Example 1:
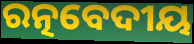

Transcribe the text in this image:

ରତ୍ନବେଦୀୟ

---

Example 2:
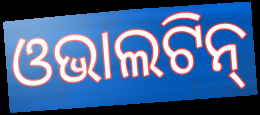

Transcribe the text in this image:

ଓଭାଲଟିନ୍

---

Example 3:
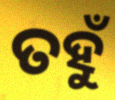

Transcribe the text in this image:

ତହୁଁ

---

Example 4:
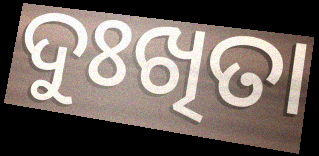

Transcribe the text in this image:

ଦୁଃଖିତା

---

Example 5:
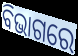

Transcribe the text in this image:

ବିଭାଗରେ